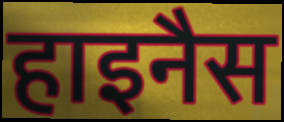
हाइनैस